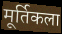
मूर्तिकला